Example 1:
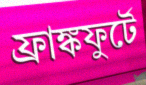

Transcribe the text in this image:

ফ্রাঙ্কফুর্টে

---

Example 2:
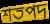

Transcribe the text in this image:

শতপদ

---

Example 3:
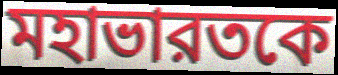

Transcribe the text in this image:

মহাভারতকে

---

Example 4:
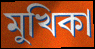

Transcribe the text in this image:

মুখিকা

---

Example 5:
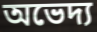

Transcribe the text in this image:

অভেদ্য